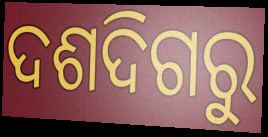
ଦଶଦିଗରୁ